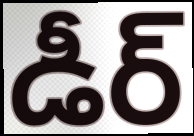
డీర్